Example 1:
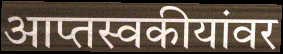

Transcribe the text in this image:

आप्तस्वकीयांवर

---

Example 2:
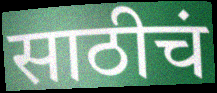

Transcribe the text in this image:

साठीचं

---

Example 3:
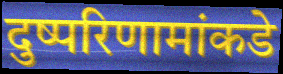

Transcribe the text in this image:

दुष्परिणामांकडे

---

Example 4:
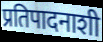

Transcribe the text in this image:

प्रतिपादनाशी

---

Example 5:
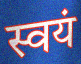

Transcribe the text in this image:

स्वयं